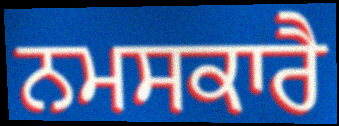
ਨਮਸਕਾਰੈ